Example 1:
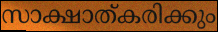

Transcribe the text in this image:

സാക്ഷാത്കരിക്കും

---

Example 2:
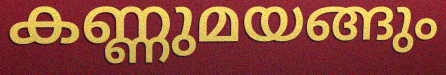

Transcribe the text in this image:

കണ്ണുമയങ്ങും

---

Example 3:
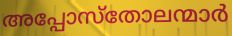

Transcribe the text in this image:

അപ്പോസ്തോലന്മാർ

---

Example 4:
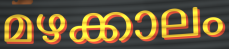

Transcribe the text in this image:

മഴക്കാലം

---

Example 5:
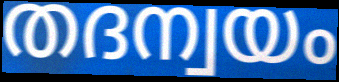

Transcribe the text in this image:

തദന്വയം